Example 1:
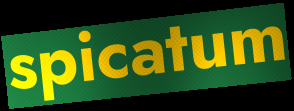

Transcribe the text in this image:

spicatum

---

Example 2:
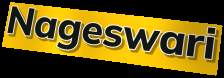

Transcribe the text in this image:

Nageswari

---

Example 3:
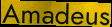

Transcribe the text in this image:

Amadeus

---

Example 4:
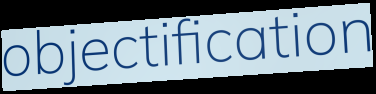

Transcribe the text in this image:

objectification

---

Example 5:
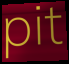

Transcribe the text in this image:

pit